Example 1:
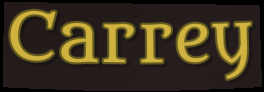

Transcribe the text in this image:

Carrey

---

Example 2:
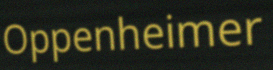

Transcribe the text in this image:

Oppenheimer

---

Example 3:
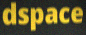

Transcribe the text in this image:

dspace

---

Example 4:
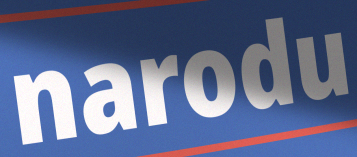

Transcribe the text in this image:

narodu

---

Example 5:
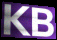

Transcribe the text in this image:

KB